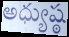
అధ్యుష్ఠ